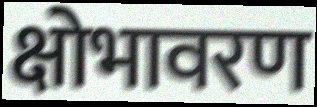
क्षोभावरण